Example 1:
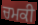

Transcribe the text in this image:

ਚਮਕੀ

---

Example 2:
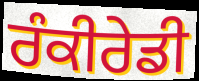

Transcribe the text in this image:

ਰੰਕੀਰੇਡੀ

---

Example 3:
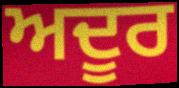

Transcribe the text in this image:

ਅਦੂਰ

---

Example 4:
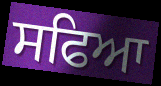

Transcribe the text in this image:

ਸਫਿਆ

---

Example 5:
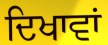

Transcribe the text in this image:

ਦਿਖਾਵਾਂ